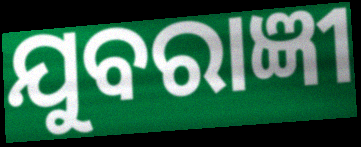
ଯୁବରାଜ୍ଞୀ